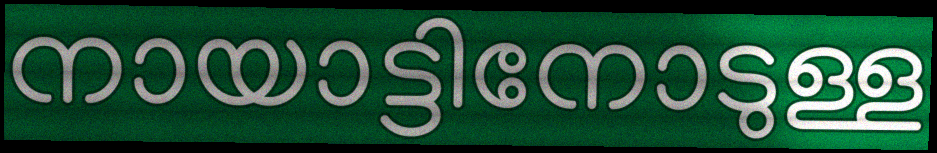
നായാട്ടിനോടുള്ള